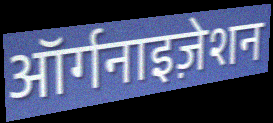
ऑर्गनाइज़ेशन